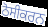
ਠੋਸੀਕਰਨ